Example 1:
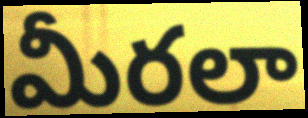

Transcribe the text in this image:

మీరలా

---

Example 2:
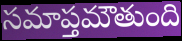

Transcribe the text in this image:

సమాప్తమౌతుంది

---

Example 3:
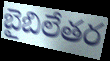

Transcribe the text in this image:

బైబిలేతర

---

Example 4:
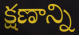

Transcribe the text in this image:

క్షణాన్ని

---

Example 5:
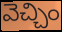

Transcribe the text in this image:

వెచ్చిం